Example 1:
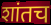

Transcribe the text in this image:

शांतच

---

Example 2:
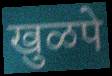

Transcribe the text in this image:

खुळपे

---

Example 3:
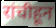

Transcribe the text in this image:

रांचीहून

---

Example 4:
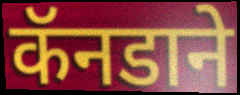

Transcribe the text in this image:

कॅनडाने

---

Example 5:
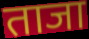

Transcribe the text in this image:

ताजा